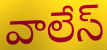
వాలేస్